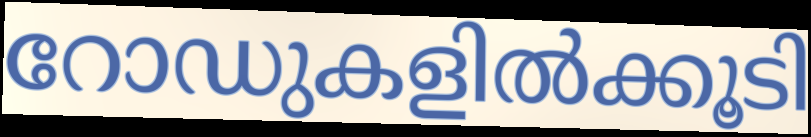
റോഡുകളിൽക്കൂടി